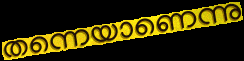
തന്നെയാണെന്നു